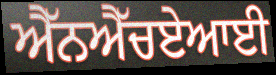
ਐੱਨਐੱਚਏਆਈ